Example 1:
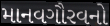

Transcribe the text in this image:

માનવગૌરવનો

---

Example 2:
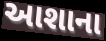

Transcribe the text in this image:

આશાના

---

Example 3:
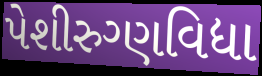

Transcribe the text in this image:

પેશીરુગ્ણવિદ્યા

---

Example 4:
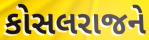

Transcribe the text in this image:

કોસલરાજને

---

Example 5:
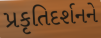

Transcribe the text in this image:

પ્રકૃતિદર્શનને